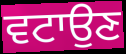
ਵਟਾਉਣ